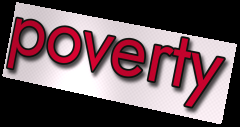
poverty